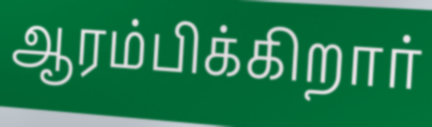
ஆரம்பிக்கிறார்